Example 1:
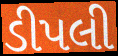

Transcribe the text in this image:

ડીપલી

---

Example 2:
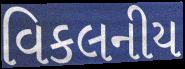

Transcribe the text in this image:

વિકલનીય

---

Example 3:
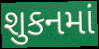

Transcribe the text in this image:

શુકનમાં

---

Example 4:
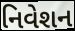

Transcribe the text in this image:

નિવેશન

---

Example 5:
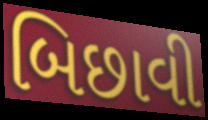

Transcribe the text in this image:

બિછાવી